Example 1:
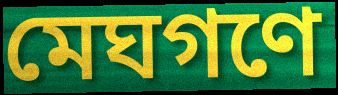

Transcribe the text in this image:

মেঘগণে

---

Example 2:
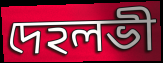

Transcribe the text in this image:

দেহলভী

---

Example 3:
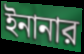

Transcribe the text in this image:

ইনানার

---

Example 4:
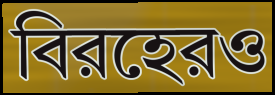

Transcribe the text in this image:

বিরহেরও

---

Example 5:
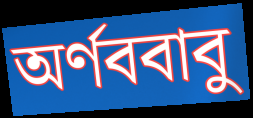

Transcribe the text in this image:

অর্ণববাবু